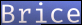
Brice